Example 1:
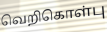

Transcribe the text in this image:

வெறிகொள்பு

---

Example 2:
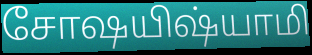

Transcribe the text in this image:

சோஷயிஷ்யாமி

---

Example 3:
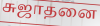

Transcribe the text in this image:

சுஜாதனை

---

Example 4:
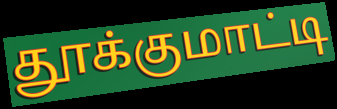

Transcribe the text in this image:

தூக்குமாட்டி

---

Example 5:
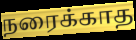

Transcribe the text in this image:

நரைக்காத